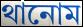
থানোম